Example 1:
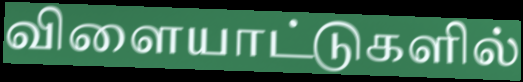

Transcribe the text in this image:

விளையாட்டுகளில்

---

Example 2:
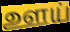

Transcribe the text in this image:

ஊய்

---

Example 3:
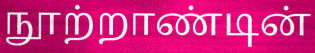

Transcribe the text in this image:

நூற்றாண்டின்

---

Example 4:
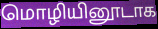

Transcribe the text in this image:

மொழியினூடாக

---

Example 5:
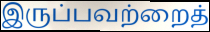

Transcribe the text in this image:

இருப்பவற்றைத்